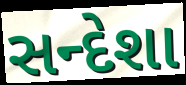
સન્દેશા